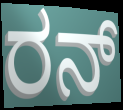
ರನ್